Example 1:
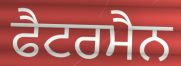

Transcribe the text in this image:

ਫੈਟਰਮੈਨ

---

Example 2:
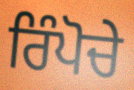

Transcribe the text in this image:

ਰਿੰਪੋਚੇ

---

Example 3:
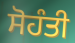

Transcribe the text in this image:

ਸੋਹੰਤੀ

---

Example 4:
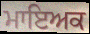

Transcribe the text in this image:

ਮਾਇਅਕ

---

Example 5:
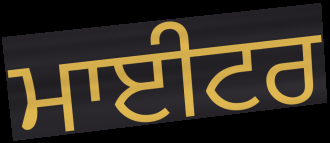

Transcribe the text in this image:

ਮਾਈਟਰ